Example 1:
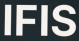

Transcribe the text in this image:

IFIS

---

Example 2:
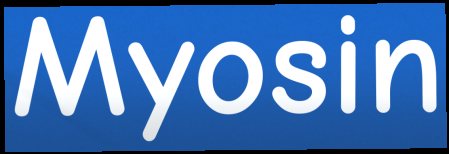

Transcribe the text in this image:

Myosin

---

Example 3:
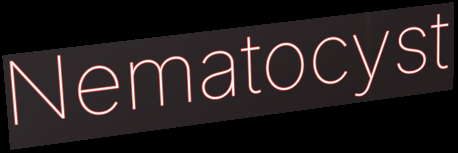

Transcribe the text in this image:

Nematocyst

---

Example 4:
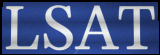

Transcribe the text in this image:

LSAT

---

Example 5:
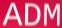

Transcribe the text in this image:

ADM